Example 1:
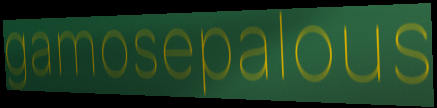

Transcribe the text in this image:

gamosepalous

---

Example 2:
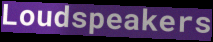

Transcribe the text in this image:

Loudspeakers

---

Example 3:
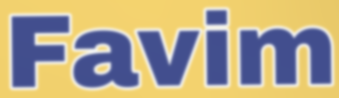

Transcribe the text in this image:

Favim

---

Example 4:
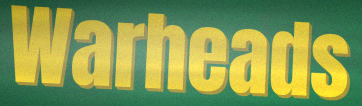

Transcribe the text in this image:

Warheads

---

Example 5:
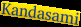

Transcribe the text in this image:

Kandasami